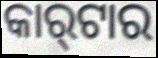
କାର୍‍ଟାର